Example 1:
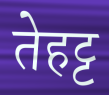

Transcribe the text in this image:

तेहट्ट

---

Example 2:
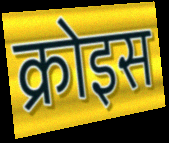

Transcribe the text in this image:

क्रोइस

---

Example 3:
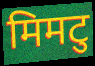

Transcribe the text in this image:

मिमटु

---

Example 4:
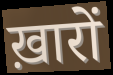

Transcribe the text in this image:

ख़ारों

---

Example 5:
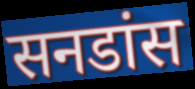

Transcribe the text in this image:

सनडांस